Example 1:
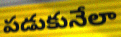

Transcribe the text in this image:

పడుకునేలా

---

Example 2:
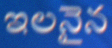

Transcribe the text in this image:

ఇలనైన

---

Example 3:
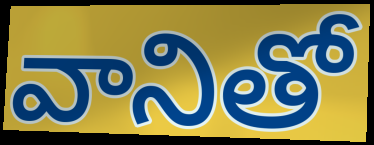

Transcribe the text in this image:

వానితో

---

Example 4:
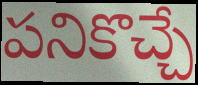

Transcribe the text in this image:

పనికొచ్చే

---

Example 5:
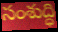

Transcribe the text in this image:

సంశుద్ధి